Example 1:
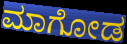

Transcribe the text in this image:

ಮಾಗೋಡ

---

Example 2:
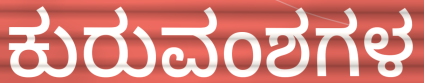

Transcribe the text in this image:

ಕುರುವಂಶಗಳ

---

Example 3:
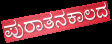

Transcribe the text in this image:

ಪುರಾತನಕಾಲದ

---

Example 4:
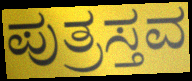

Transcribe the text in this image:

ಪುತ್ರಸ್ತವ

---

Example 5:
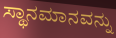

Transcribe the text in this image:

ಸ್ಥಾನಮಾನವನ್ನು